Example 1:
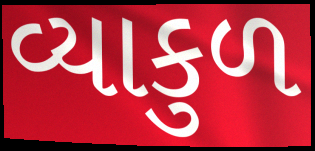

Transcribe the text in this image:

વ્યાકુળ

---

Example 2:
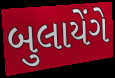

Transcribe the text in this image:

બુલાયેંગે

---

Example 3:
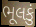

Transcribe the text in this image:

ભૂલકું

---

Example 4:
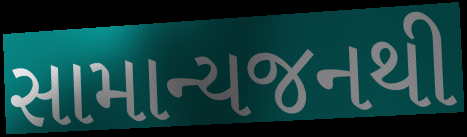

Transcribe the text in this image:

સામાન્યજનથી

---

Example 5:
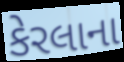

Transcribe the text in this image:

કેરલાના